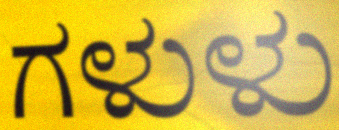
ಗಳುಳು